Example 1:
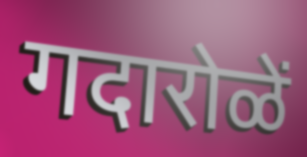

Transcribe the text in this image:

गदारोळें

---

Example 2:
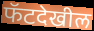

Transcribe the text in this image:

फॅटदेखील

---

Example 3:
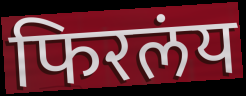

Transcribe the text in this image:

फिरलंय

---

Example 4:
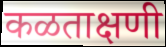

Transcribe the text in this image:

कळताक्षणी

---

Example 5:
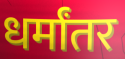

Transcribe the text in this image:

धर्मांतर